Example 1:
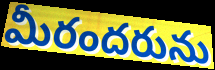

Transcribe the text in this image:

మీరందరును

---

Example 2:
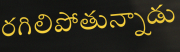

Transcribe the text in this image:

రగిలిపోతున్నాడు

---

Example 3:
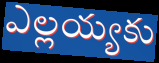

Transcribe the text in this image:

ఎల్లయ్యకు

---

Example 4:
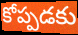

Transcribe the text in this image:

కోప్పడకు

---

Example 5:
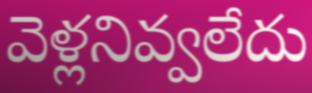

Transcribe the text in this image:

వెళ్లనివ్వలేదు